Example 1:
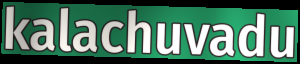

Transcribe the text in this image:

kalachuvadu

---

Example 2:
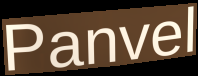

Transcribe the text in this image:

Panvel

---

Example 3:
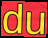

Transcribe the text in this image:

du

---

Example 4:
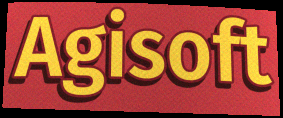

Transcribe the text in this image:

Agisoft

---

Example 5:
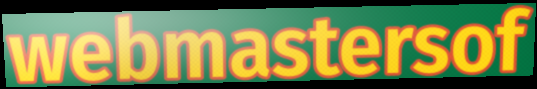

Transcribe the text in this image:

webmastersof